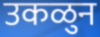
उकळुन